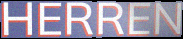
HERREN